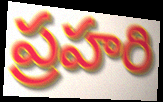
ప్రహరి